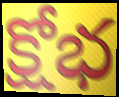
క్షోభ